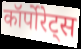
कॉर्पोरेट्स